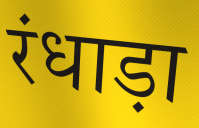
रंधाड़ा